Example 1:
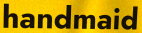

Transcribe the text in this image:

handmaid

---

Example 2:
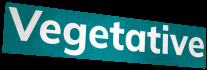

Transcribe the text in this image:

Vegetative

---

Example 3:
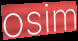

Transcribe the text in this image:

osim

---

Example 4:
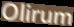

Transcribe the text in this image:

Olirum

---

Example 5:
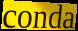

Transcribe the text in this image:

conda